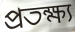
প্ৰতক্ষ্য